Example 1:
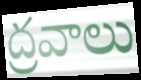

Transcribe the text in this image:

ద్రవాలు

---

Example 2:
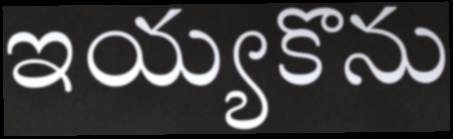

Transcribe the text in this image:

ఇయ్యకొను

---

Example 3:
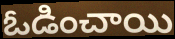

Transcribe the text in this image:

ఓడించాయి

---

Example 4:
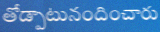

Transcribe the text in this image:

తోడ్పాటునందించారు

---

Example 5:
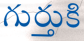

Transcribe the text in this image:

గుర్తుకి